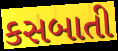
કસબાતી